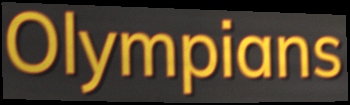
Olympians